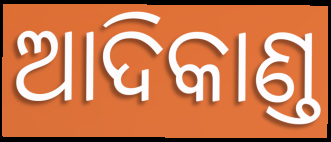
ଆଦିକାଣ୍ଡ